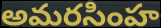
అమరసింహ